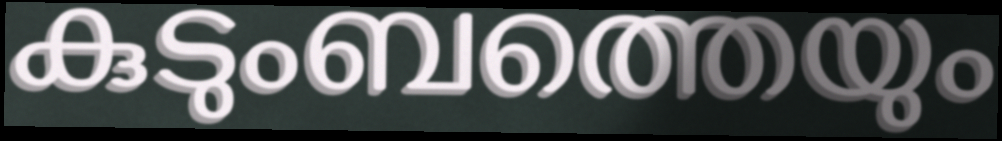
കുടുംബത്തെയും